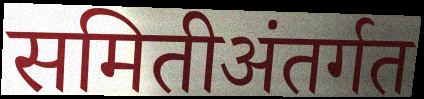
समितीअंतर्गत